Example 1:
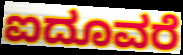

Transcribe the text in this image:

ಐದೂವರೆ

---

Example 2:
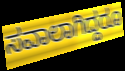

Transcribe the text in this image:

ಸವಾಲಾಗಿದ್ದರೂ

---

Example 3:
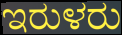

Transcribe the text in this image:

ಇರುಳರು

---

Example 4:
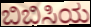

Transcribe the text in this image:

ಬಿಬಿಸಿಯ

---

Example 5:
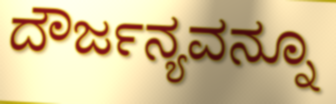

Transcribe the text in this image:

ದೌರ್ಜನ್ಯವನ್ನೂ